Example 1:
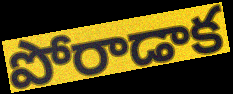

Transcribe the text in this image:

పోరాడాక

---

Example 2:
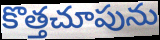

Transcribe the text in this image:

కొత్తచూపును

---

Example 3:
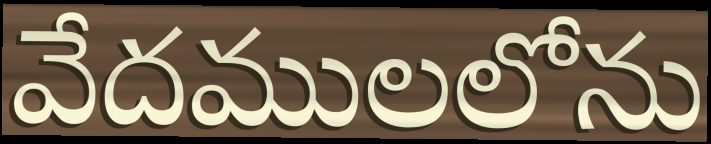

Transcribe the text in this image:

వేదములలోను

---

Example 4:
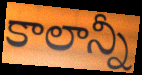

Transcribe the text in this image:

కాలాన్నీ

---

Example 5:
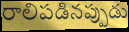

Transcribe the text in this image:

రాలిపడినప్పుడు